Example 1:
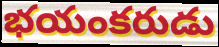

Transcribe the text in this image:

భయంకరుడు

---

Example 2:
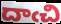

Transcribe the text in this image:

దాఁచి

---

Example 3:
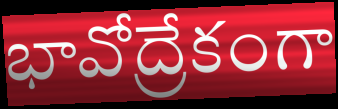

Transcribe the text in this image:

భావోద్రేకంగా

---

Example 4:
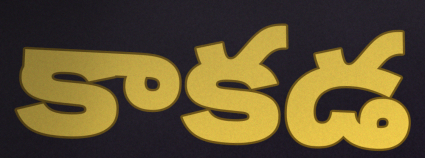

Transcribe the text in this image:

కాకడ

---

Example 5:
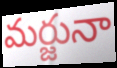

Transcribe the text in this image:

మర్జునా